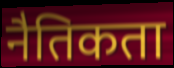
नैतिकता